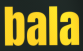
bala